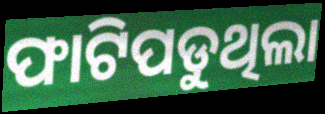
ଫାଟିପଡୁଥିଲା